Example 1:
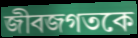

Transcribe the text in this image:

জীবজগতকে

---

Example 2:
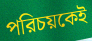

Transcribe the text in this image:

পরিচয়কেই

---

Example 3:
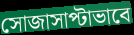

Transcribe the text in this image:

সোজাসাপ্টাভাবে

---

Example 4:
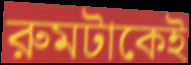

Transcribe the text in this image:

রুমটাকেই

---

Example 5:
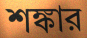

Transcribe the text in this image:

শঙ্কার